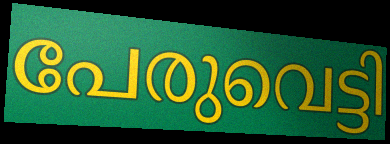
പേരുവെട്ടി